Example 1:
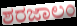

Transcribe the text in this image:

ಶರಜಾಲಂ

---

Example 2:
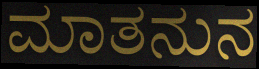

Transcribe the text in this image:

ಮಾತನುನ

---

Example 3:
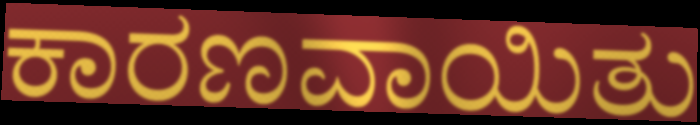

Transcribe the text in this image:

ಕಾರಣವಾಯಿತು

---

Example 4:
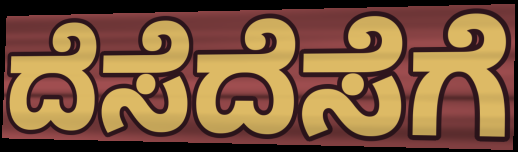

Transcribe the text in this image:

ದೆಸೆದೆಸೆಗೆ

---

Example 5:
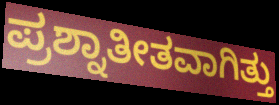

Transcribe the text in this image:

ಪ್ರಶ್ನಾತೀತವಾಗಿತ್ತು